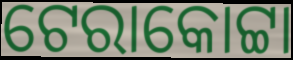
ଟେରାକୋଟ୍ଟା